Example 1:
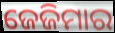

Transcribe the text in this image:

ଜେଜିମାର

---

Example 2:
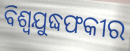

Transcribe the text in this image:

ବିଶ୍ୱଯୁଦ୍ଧଫକୀର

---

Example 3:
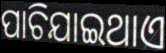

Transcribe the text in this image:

ପାଚିଯାଇଥାଏ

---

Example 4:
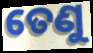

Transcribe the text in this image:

ତେଣୁ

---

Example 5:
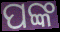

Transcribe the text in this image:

ପଙ୍କ